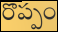
రొప్పం